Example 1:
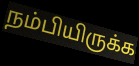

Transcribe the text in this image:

நம்பியிருக்க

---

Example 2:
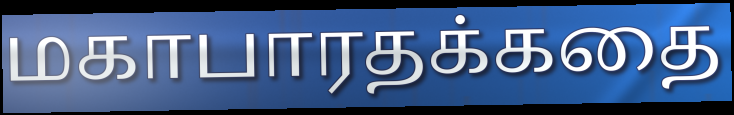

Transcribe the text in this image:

மகாபாரதக்கதை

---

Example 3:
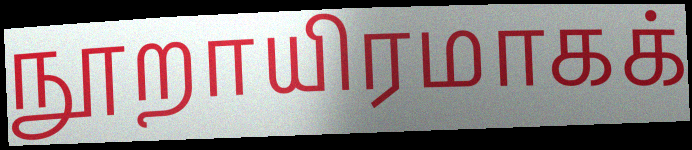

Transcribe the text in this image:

நூறாயிரமாகக்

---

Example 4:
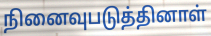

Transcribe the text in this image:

நினைவுபடுத்தினாள்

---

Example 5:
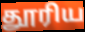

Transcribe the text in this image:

தூரிய